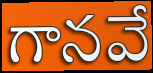
గానవే